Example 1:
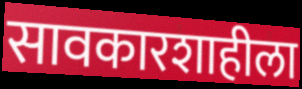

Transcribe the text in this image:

सावकारशाहीला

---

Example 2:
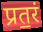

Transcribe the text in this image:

प्रत॒रं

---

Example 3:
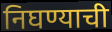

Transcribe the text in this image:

निघण्याची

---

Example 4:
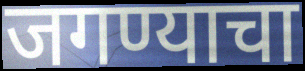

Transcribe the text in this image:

जगण्याचा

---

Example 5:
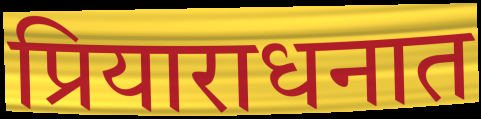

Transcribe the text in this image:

प्रियाराधनात